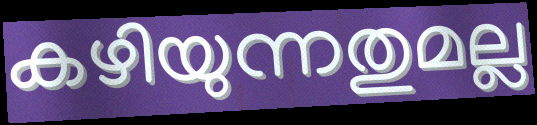
കഴിയുന്നതുമല്ല